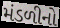
મંડળીનો